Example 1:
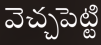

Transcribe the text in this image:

వెచ్చపెట్టి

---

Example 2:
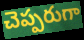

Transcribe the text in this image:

చెప్పరుగా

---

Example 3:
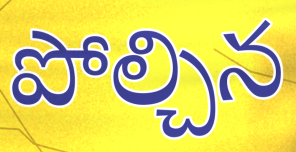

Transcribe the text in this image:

పోల్చిన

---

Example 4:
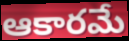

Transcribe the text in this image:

ఆకారమే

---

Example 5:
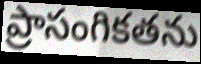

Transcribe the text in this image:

ప్రాసంగికతను